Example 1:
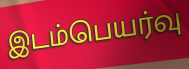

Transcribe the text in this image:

இடம்பெயர்வு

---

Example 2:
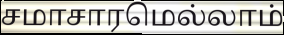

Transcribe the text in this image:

சமாசாரமெல்லாம்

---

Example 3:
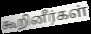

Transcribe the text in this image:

கூறினீர்கள்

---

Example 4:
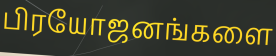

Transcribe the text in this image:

பிரயோஜனங்களை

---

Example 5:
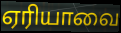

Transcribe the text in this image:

ஏரியாவை